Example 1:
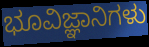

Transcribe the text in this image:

ಭೂವಿಜ್ಞಾನಿಗಳು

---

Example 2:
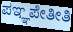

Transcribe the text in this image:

ಪಞ್ಞಪೇತೀತಿ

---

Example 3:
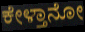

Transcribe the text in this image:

ಕೇಳ್ತಾನೋ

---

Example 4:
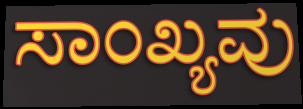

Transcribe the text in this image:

ಸಾಂಖ್ಯವು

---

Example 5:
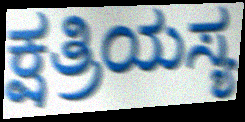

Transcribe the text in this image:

ಕ್ಷತ್ರಿಯಸ್ಯ